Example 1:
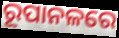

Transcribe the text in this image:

ରୂପାନଳରେ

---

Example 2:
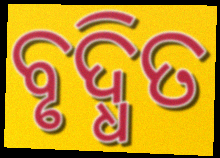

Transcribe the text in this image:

ବୃଦ୍ଧିତ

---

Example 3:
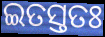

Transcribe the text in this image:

ଇତସ୍ତତଃ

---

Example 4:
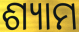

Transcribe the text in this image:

ଶ୍ୟାମ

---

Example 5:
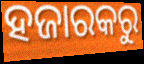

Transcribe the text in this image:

ହଜାରକରୁ